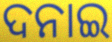
ଦନାଇ